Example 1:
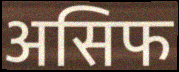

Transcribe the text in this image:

असिफ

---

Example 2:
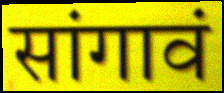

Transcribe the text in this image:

सांगावं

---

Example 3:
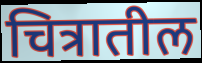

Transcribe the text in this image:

चित्रातील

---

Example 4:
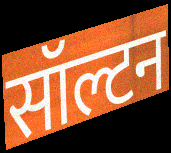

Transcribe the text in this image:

सॉल्टन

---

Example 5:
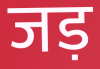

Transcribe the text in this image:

जड़